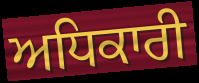
ਅਧਿਕਾਰੀ